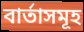
বাৰ্তাসমূহ